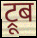
ट्रूब